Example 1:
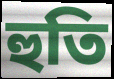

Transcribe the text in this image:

হুতি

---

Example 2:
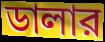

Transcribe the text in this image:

ডালার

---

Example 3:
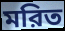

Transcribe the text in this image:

মরিত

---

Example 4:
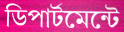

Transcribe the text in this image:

ডিপার্টমেন্টে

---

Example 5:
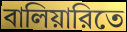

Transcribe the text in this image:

বালিয়ারিতে